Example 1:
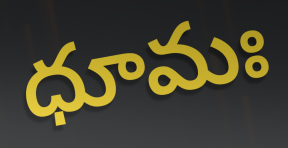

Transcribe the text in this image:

ధూమః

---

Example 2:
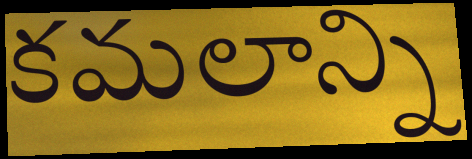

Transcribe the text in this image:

కమలాన్ని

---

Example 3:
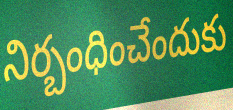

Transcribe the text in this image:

నిర్బంధించేందుకు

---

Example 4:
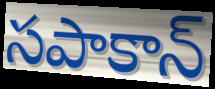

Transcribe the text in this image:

సపాకాన్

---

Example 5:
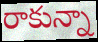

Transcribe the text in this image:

రాకున్నా